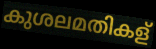
കുശലമതികള്